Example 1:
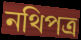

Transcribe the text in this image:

নথিপত্র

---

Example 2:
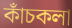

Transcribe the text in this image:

কাঁচকলা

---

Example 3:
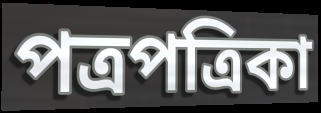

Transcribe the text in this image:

পত্রপত্রিকা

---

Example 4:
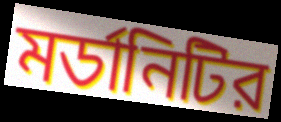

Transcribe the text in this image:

মর্ডানিটির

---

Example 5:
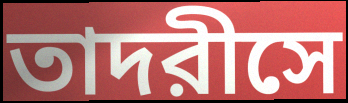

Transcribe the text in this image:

তাদরীসে